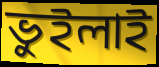
ভুইলাই